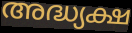
അദ്ധ്യക്ഷ